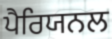
ਪੈਰਿਯਨਲ